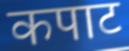
कपाट